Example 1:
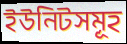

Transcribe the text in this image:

ইউনিটসমূহ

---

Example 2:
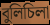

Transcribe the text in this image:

বুলিচিলা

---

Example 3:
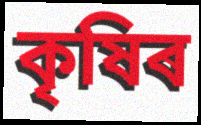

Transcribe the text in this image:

কৃষিৰ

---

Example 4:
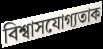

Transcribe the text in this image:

বিশ্বাসযোগ্যতাক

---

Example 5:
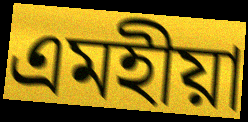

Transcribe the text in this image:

এমহীয়া